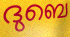
ദുബെ